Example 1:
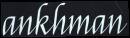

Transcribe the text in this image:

ankhman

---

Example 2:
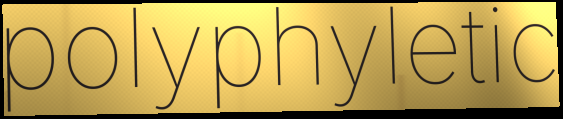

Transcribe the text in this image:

polyphyletic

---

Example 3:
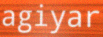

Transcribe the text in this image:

agiyar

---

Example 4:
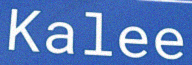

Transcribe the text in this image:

Kalee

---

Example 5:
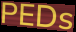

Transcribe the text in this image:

PEDs